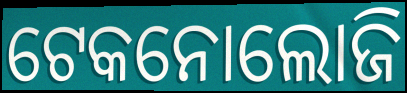
ଟେକନୋଲୋଜି